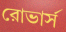
রোভার্স